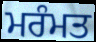
ਮਰੰਮਤ